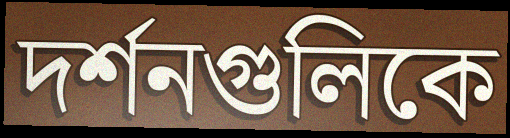
দর্শনগুলিকে